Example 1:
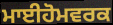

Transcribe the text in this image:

ਮਾਈਹੋਮਵਰਕ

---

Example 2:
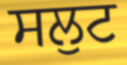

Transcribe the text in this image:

ਸਲੁਟ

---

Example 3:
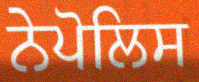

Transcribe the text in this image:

ਨੇਪੋਲਿਸ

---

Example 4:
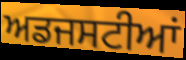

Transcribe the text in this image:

ਅਡਜਸਟੀਆਂ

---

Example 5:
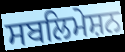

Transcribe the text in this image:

ਸਬਲਿਮੇਸ਼ਨ